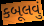
કબૂલવું